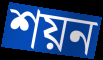
শয়ন